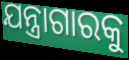
ଯନ୍ତ୍ରାଗାରକୁ